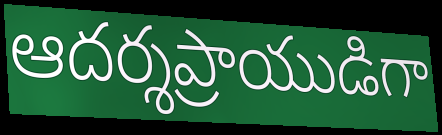
ఆదర్శప్రాయుడిగా